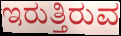
ಇರುತ್ತಿರುವ